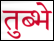
तुब्भे